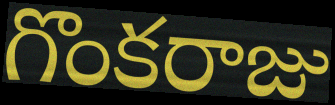
గొంకరాజు